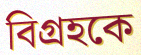
বিগ্রহকে